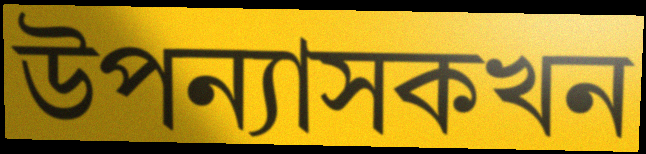
উপন্যাসকখন